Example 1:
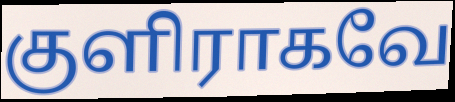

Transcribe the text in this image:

குளிராகவே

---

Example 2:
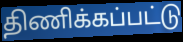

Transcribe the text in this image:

திணிக்கப்பட்டு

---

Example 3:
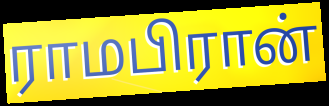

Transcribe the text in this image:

ராமபிரான்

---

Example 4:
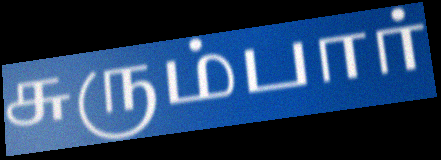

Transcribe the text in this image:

சுரும்பார்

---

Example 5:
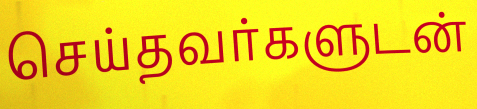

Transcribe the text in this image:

செய்தவர்களுடன்